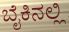
ಬೈಕಿನಲ್ಲಿ